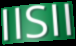
IISII